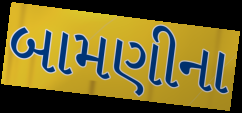
બામણીના